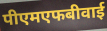
पीएमएफबीवाई